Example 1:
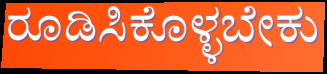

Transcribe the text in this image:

ರೂಡಿಸಿಕೊಳ್ಳಬೇಕು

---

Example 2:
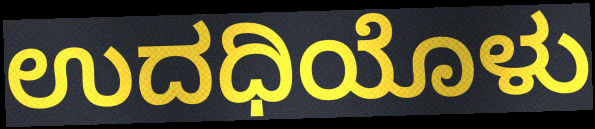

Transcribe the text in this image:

ಉದಧಿಯೊಳು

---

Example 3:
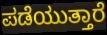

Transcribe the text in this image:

ಪಡೆಯುತ್ತಾರೆ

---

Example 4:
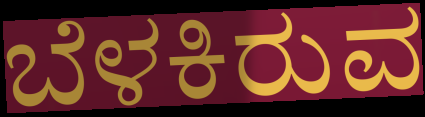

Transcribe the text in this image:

ಬೆಳಕಿರುವ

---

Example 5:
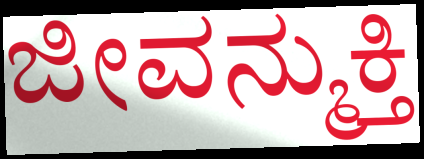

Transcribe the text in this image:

ಜೀವನ್ಮುಕ್ತಿ